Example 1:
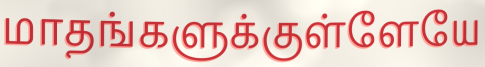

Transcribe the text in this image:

மாதங்களுக்குள்ளேயே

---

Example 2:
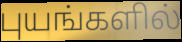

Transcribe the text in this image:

புயங்களில்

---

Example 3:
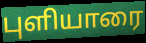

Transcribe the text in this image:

புளியாரை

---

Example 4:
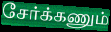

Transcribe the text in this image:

சேர்க்கணும்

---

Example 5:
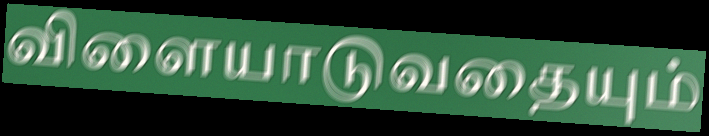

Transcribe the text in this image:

விளையாடுவதையும்